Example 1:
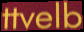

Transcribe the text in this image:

ttvelb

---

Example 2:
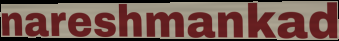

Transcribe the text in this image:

nareshmankad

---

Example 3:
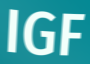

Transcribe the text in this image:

IGF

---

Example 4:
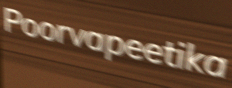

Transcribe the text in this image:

Poorvapeetika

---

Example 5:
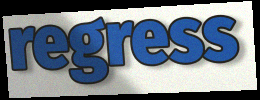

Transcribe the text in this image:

regress